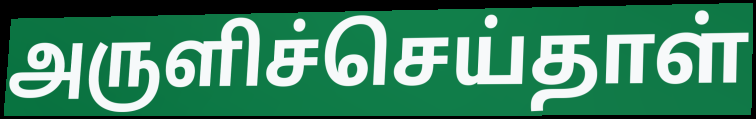
அருளிச்செய்தாள்